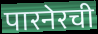
पारनेरची